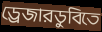
ড্রেজারডুবিতে